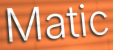
Matic